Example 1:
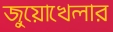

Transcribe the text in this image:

জুয়োখেলার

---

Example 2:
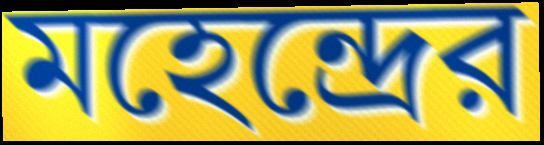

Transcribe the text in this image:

মহেন্দ্রের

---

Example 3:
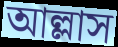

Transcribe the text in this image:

আল্লাস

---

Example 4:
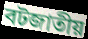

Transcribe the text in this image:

বটজাতীয়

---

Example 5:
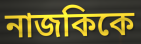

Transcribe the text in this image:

নাজকিকে